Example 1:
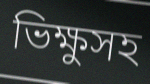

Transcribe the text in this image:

ভিক্ষুসহ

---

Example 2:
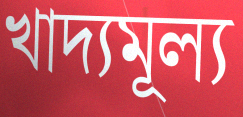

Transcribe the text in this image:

খাদ্যমূল্য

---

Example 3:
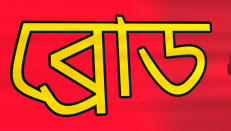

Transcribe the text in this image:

ব্রোড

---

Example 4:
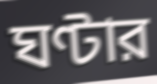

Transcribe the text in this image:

ঘণ্টার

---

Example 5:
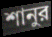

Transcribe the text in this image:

শানুর